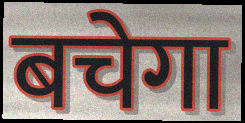
बचेगा